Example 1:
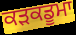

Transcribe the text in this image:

ਕੜਕਡੂਮਾ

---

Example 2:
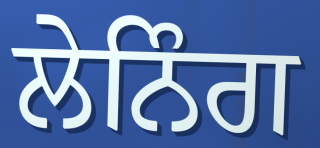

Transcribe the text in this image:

ਲੇਨਿੰਗ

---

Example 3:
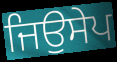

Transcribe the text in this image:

ਜਿਉਸੇਪ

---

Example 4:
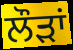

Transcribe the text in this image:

ਲੌੜਾਂ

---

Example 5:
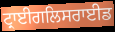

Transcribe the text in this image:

ਟ੍ਰਾਈਗਲਿਸਰਾਈਡ